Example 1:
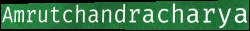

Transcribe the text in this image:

Amrutchandracharya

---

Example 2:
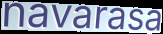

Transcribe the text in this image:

navarasa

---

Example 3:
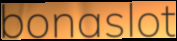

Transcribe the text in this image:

bonaslot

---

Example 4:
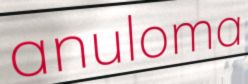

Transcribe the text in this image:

anuloma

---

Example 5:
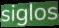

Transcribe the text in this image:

siglos